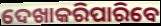
ଦେଖାକରିପାରିବେ